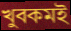
খুবকমই